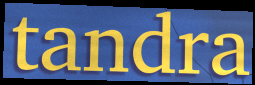
tandra